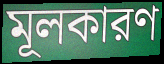
মূলকারণ